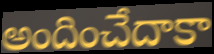
అందించేదాకా